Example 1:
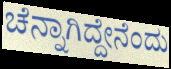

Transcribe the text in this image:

ಚೆನ್ನಾಗಿದ್ದೇನೆಂದು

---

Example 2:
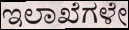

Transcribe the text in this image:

ಇಲಾಖೆಗಳೇ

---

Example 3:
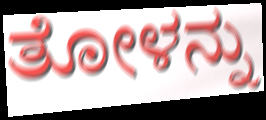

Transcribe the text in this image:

ತೋಳನ್ನು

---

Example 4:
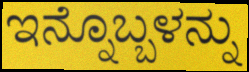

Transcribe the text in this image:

ಇನ್ನೊಬ್ಬಳನ್ನು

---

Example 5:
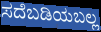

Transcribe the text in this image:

ಸದೆಬಡಿಯಬಲ್ಲ